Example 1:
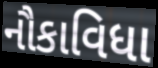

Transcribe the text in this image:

નૌકાવિધા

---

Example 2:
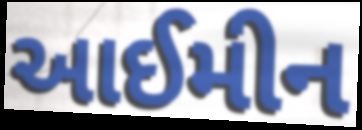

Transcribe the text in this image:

આઈમીન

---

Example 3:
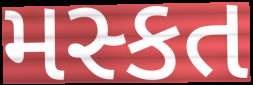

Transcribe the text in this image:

મસ્કત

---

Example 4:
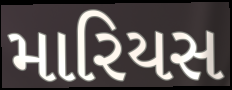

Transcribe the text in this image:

મારિયસ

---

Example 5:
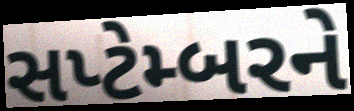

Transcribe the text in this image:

સપ્ટેમ્બરને